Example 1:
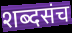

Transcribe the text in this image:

शब्दसंच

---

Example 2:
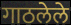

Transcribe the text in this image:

गाठलेले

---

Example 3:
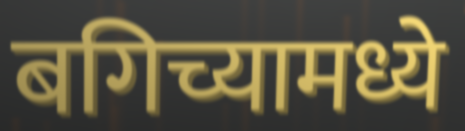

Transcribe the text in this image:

बगिच्यामध्ये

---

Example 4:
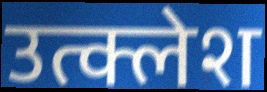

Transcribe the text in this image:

उत्क्लेश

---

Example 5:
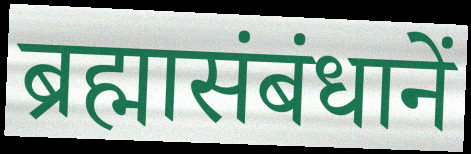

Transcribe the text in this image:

ब्रह्मासंबंधानें